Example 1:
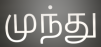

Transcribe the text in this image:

முந்து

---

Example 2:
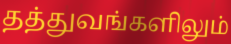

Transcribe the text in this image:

தத்துவங்களிலும்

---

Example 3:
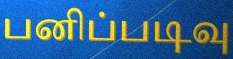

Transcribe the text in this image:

பனிப்படிவு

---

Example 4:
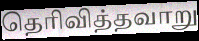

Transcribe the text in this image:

தெரிவித்தவாறு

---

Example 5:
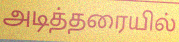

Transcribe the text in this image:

அடித்தரையில்